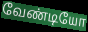
வேண்டியோ